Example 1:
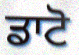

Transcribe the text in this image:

ਡਾਟੋ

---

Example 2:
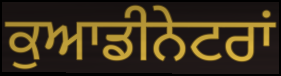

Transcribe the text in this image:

ਕੁਆਡੀਨੇਟਰਾਂ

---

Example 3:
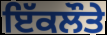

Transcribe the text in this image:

ਇੱਕਲੌਤੇ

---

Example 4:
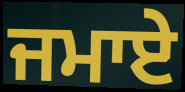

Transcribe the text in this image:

ਜਮਾਏ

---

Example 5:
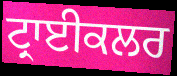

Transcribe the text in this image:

ਟ੍ਰਾਈਕਲਰ